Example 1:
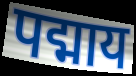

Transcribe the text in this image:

पद्माय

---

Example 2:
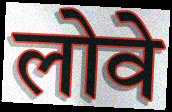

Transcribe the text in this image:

लोवे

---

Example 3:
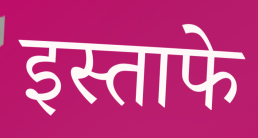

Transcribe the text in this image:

इस्ताफे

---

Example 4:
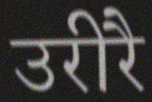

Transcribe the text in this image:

उरीरै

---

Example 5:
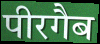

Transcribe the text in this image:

पीरगैब